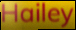
Hailey